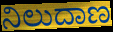
ನಿಲುದಾಣ